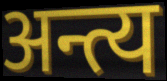
अन्त्य